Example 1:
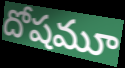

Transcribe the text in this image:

దోషమూ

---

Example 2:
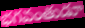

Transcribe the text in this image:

భగవంతుడూ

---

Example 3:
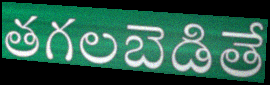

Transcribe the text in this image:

తగలబెడితే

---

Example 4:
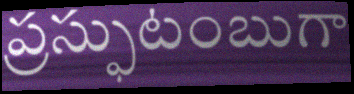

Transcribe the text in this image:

ప్రస్ఫుటంబుగా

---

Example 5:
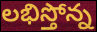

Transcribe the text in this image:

లభిస్తోన్న